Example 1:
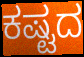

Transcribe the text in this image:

ಕಷ್ಟದ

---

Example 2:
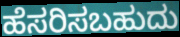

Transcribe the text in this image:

ಹೆಸರಿಸಬಹುದು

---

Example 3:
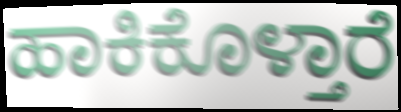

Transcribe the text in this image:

ಹಾಕಿಕೊಳ್ತಾರೆ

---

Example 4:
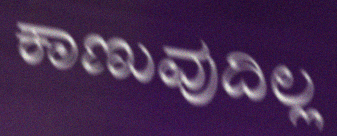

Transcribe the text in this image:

ಕಾಣುವುದಿಲ್ಲ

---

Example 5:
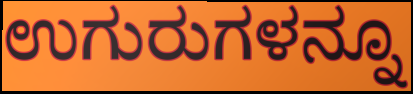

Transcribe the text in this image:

ಉಗುರುಗಳನ್ನೂ